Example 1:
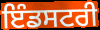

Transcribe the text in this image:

ਇੰਡਸਟਰੀ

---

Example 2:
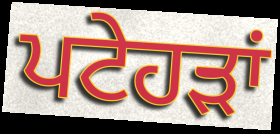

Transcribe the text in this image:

ਪਟੇਹੜਾਂ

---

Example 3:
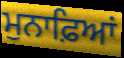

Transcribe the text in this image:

ਮੁਨਾਫ਼ਿਆਂ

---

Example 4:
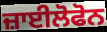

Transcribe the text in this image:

ਜ਼ਾਈਲੋਫੋਨ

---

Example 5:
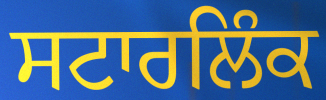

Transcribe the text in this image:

ਸਟਾਰਲਿੰਕ